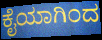
ಕೈಯಾಗಿಂದ